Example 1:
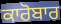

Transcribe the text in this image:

ਕਾਰੋਬਾਰ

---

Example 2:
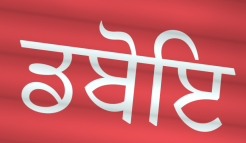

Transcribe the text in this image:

ਡਬੋਇ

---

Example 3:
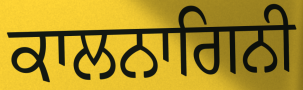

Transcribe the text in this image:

ਕਾਲਨਾਗਿਨੀ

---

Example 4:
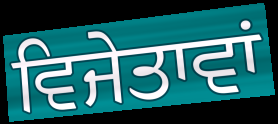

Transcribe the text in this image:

ਵਿਜੇਤਾਵਾਂ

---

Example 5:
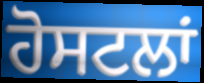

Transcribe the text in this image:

ਹੋਸਟਲਾਂ